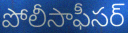
పోలీసాఫీసర్